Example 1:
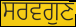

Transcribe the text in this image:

ਸਰਵਗੁਣ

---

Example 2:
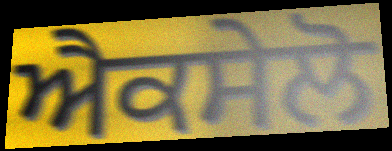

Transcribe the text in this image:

ਐਕਸੇਲੋ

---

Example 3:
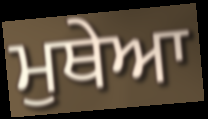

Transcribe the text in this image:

ਮੁਥੇਆ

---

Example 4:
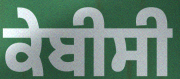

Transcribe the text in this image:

ਕੇਬੀਸੀ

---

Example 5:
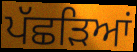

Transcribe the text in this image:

ਪੱਛੜਿਆਂ